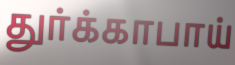
துர்க்காபாய்